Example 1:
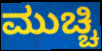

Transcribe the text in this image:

ಮುಚ್ಚಿ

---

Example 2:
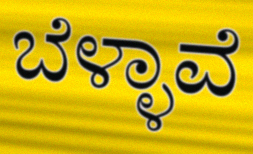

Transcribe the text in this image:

ಬೆಳ್ಳಾವೆ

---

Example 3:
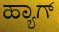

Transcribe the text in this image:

ಹ್ಯಾಗ್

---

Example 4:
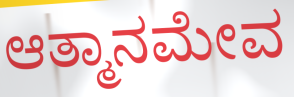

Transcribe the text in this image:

ಆತ್ಮಾನಮೇವ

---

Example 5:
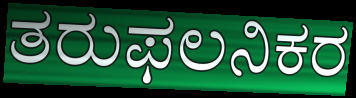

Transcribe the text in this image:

ತರುಫಲನಿಕರ